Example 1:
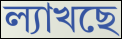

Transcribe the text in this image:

ল্যাখছে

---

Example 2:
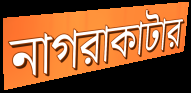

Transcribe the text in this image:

নাগরাকাটার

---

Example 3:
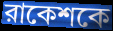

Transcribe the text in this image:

রাকেশকে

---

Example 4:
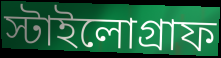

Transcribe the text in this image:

স্টাইলোগ্রাফ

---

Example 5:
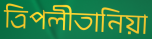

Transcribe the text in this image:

ত্রিপলীতানিয়া